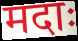
मदाः